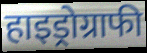
हाइड्रोग्राफी